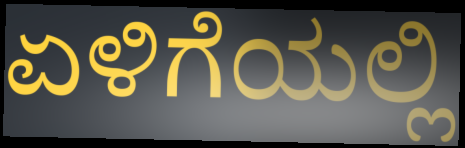
ಏಳಿಗೆಯಲ್ಲಿ